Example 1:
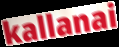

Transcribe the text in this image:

kallanai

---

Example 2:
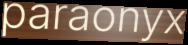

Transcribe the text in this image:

paraonyx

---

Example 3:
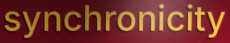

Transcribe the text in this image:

synchronicity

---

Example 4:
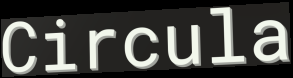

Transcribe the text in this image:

Circula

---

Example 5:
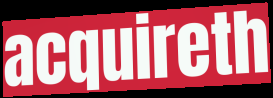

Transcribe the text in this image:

acquireth